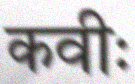
कवीः